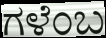
ಗಳೆಂಬ